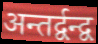
अन्तर्द्वन्द्व